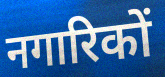
नगारिकों